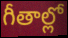
గీతాల్లో